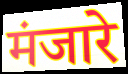
मंजारे